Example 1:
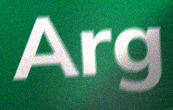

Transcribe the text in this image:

Arg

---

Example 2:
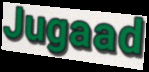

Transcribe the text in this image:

Jugaad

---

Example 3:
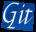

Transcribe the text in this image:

Git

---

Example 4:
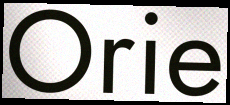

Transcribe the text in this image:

Orie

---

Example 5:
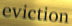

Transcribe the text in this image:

eviction